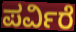
ಪರ್ವಿರೆ